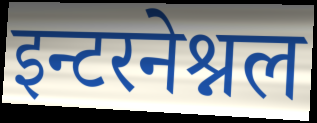
इन्टरनेश्नल